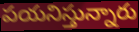
పయనిస్తున్నారు